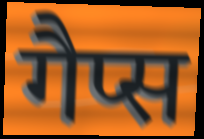
गैप्स